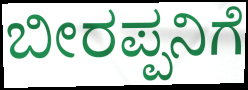
ಬೀರಪ್ಪನಿಗೆ